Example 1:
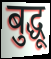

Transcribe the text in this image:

बुद्धू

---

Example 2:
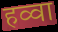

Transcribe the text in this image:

हव्वा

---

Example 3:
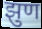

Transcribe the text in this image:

झुण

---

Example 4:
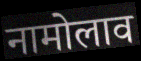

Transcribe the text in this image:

नामोलाव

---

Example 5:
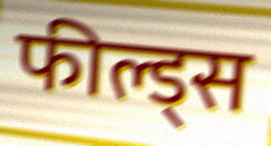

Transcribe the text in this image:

फील्ड्स